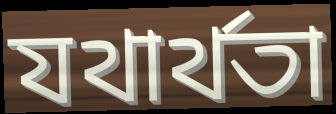
যথার্থতা